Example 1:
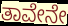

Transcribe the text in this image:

ತಾವೇನೇ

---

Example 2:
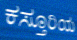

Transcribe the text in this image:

ಕಸ್ತೂರಿಯ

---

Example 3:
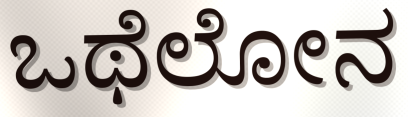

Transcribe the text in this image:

ಒಥೆಲೋನ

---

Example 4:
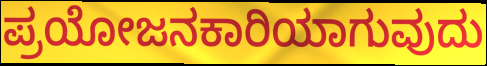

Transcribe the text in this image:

ಪ್ರಯೋಜನಕಾರಿಯಾಗುವುದು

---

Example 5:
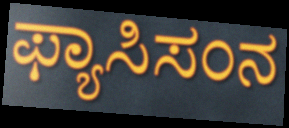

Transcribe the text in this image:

ಫ್ಯಾಸಿಸಂನ